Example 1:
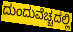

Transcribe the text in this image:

ದುಂದುವೆಚ್ಚದಲ್ಲಿ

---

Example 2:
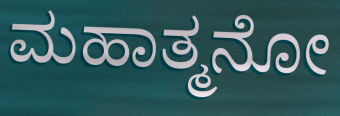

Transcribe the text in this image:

ಮಹಾತ್ಮನೋ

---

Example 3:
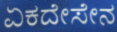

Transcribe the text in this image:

ಏಕದೇಸೇನ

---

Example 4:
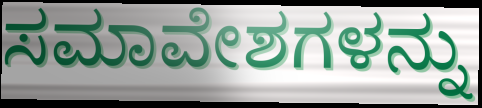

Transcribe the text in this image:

ಸಮಾವೇಶಗಳನ್ನು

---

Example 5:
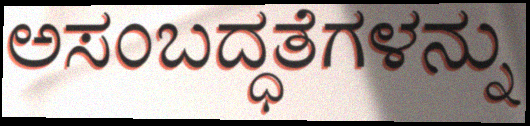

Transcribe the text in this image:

ಅಸಂಬದ್ಧತೆಗಳನ್ನು